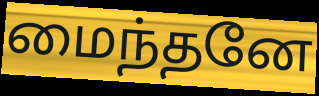
மைந்தனே